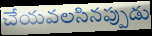
చేయవలసినప్పుడు